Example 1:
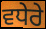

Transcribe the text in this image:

ਵਧੇਰੇ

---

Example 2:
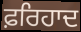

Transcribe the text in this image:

ਫ਼ਰਿਹਾਦ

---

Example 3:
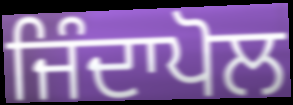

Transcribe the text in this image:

ਜਿੰਦਾਪੋਲ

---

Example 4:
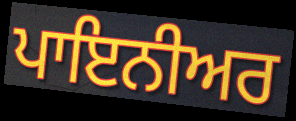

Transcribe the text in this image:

ਪਾਇਨੀਅਰ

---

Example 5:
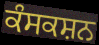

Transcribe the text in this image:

ਕੰਸਕਸ਼ਨ